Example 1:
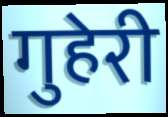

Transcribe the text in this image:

गुहेरी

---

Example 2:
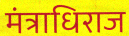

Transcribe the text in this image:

मंत्राधिराज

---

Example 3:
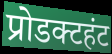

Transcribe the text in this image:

प्रोडक्टहंट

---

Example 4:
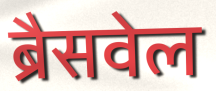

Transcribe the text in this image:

ब्रैसवेल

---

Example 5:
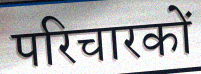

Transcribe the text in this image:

परिचारकों